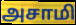
அசாமி